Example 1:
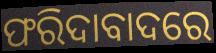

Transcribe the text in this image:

ଫରିଦାବାଦରେ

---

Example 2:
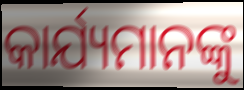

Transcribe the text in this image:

କାର୍ଯ୍ୟମାନଙ୍କୁ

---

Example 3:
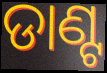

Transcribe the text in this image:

ଡାଣ୍ଟ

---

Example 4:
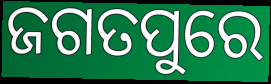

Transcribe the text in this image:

ଜଗତପୁରେ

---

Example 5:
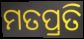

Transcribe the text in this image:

ମତପ୍ରତି